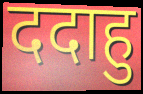
ददाहु